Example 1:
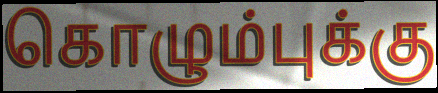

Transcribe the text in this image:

கொழும்புக்கு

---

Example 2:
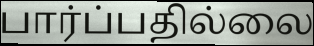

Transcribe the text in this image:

பார்ப்பதில்லை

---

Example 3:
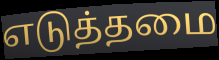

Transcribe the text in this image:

எடுத்தமை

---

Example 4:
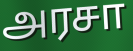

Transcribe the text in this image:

அரசா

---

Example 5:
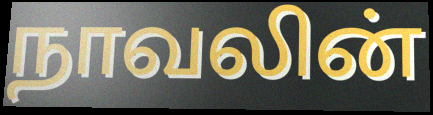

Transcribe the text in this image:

நாவலின்